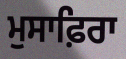
ਮੁਸਾਫ਼ਿਰਾ